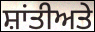
ਸ਼ਾਂਤੀਅਤੇ